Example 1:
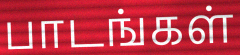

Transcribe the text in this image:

பாடங்கள்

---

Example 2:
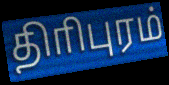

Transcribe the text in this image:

திரிபுரம்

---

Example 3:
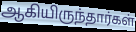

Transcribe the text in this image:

ஆகியிருந்தார்கள்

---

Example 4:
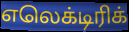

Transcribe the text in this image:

எலெக்டிரிக்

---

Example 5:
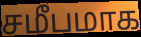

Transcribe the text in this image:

சமீபமாக